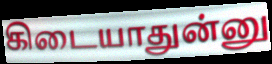
கிடையாதுன்னு